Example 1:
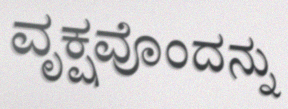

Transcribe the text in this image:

ವೃಕ್ಷವೊಂದನ್ನು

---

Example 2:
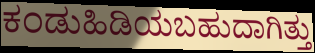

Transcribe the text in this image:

ಕಂಡುಹಿಡಿಯಬಹುದಾಗಿತ್ತು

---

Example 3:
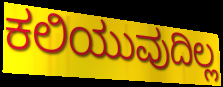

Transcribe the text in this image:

ಕಲಿಯುವುದಿಲ್ಲ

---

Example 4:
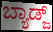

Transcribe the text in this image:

ಬ್ಯಾಡ್ಜ್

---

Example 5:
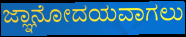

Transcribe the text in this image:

ಜ್ಞಾನೋದಯವಾಗಲು